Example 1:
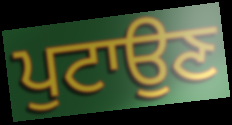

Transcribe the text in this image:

ਪੁਟਾਉਣ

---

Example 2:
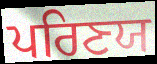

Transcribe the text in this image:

ਪਰਿਣਯ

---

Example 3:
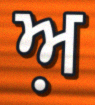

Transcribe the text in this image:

ਅ਼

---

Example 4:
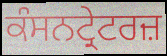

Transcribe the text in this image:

ਕੰਸਨਟ੍ਰੇਟਰਜ਼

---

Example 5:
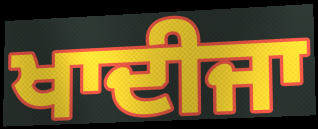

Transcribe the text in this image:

ਖਾਦੀਜਾ